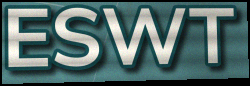
ESWT